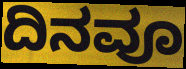
ದಿನವೂ